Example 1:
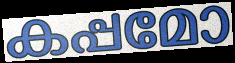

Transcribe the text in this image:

കപ്പമോ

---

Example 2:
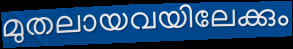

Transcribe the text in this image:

മുതലായവയിലേക്കും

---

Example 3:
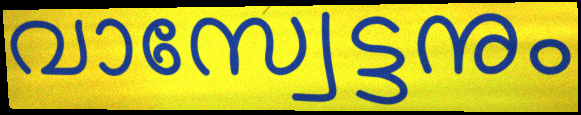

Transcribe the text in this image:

വാസ്വേട്ടനും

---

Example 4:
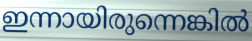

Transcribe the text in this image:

ഇന്നായിരുന്നെങ്കിൽ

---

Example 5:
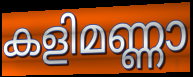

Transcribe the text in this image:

കളിമണ്ണാ